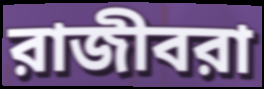
রাজীবরা